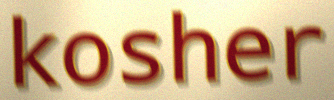
kosher